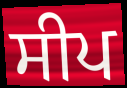
ਸੀਪ